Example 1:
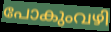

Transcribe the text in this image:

പോകുംവഴി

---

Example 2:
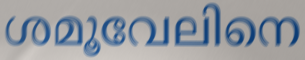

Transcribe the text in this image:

ശമൂവേലിനെ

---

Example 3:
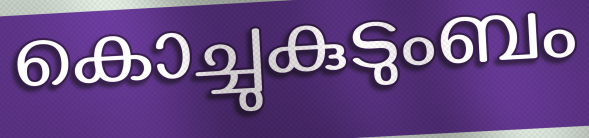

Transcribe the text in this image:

കൊച്ചുകുടുംബം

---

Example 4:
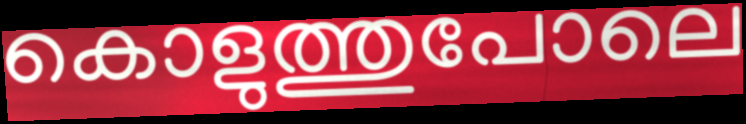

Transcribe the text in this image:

കൊളുത്തുപോലെ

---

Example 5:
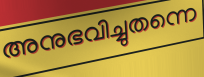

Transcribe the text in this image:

അനുഭവിച്ചുതന്നെ